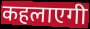
कहलाएगी